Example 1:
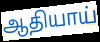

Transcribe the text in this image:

ஆதியாய்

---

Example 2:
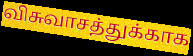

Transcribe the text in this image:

விசுவாசத்துக்காக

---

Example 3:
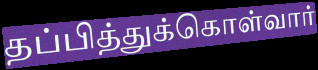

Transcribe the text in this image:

தப்பித்துக்கொள்வார்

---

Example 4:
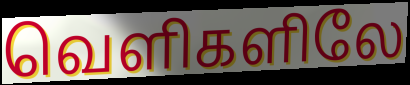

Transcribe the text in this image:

வெளிகளிலே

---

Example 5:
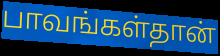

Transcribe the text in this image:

பாவங்கள்தான்